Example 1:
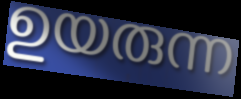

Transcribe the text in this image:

ഉയരുന്ന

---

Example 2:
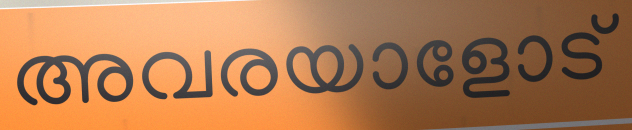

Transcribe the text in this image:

അവരയാളോട്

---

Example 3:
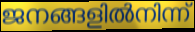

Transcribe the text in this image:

ജനങ്ങളിൽനിന്ന്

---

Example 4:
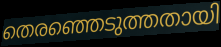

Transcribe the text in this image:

തെരഞ്ഞെടുത്തതായി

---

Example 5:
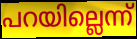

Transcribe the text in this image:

പറയില്ലെന്ന്